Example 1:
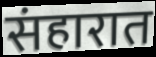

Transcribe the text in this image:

संहारात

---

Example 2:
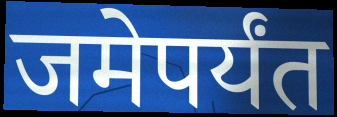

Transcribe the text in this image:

जमेपर्यंत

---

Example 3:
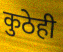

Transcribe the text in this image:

कुठेही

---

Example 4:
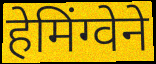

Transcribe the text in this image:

हेमिंग्वेने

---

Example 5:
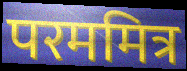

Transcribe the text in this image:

परममित्र